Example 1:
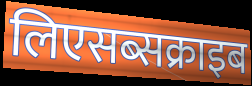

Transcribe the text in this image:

लिएसब्सक्राइब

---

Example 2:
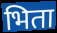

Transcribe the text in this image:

भिता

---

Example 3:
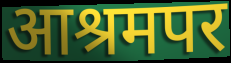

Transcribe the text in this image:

आश्रमपर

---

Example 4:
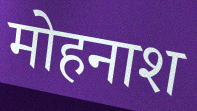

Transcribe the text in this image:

मोहनाश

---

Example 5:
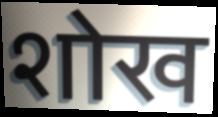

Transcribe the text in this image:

शोख